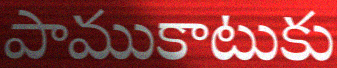
పాముకాటుకు